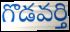
గొడవర్తి